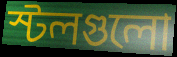
স্টলগুলো